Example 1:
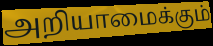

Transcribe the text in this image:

அறியாமைக்கும்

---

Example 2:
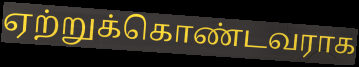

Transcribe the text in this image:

ஏற்றுக்கொண்டவராக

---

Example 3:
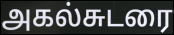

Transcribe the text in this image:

அகல்சுடரை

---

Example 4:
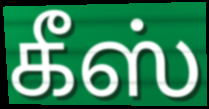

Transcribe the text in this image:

கீஸ்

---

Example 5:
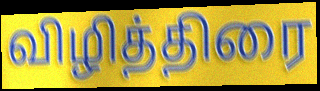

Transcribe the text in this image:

விழித்திரை